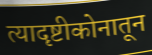
त्यादृष्टीकोनातून